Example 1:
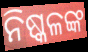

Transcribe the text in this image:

ନିଷ୍କଳଙ୍କ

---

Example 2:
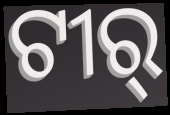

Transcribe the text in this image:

ଟୀର୍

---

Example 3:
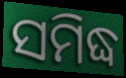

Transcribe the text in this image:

ସମିଦ୍ଧ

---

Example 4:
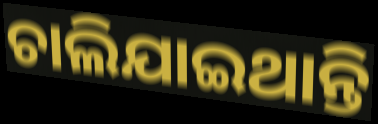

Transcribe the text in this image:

ଚାଲିଯାଇଥାନ୍ତି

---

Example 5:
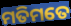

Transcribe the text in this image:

ମତିମତେ